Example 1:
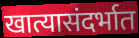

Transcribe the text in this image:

खात्यासंदर्भात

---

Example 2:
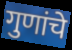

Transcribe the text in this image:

गुणांचे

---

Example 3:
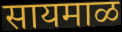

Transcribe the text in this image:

सायमाळ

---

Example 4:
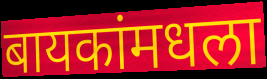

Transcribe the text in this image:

बायकांमधला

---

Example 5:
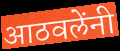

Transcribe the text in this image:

आठवलेंनी